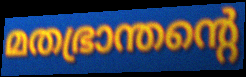
മതഭ്രാന്തന്റെ